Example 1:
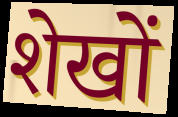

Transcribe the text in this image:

शेखों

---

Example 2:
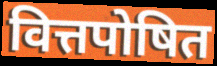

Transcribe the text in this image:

वित्तपोषित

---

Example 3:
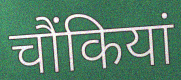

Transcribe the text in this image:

चौंकियां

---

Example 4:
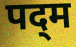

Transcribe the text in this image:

पद्‌म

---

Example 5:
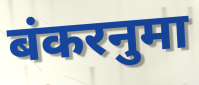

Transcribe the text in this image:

बंकरनुमा